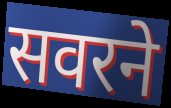
सवरने